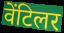
वेंटिलर